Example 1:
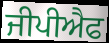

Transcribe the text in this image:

ਜੀਪੀਐਫ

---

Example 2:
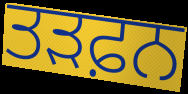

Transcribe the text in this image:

ਤੜਫ਼ਨ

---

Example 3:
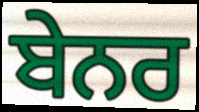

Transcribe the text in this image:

ਬੇਨਰ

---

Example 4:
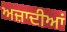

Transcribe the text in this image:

ਅਜ਼ਾਦੀਆਂ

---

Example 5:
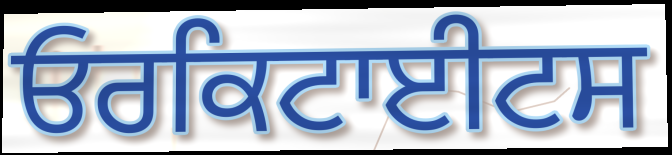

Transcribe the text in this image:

ਓਰਕਿਟਾਈਟਸ